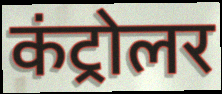
कंट्रोलर